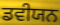
ਡਵੀਯਨ